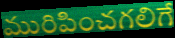
మురిపించగలిగే